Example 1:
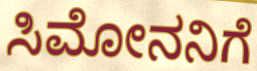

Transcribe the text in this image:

ಸಿಮೋನನಿಗೆ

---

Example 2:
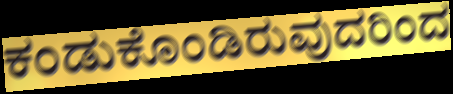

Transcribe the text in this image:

ಕಂಡುಕೊಂಡಿರುವುದರಿಂದ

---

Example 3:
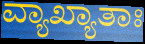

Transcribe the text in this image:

ವ್ಯಾಖ್ಯಾತಾಃ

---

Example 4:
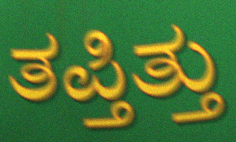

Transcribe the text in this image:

ತಪ್ತಿತ್ತು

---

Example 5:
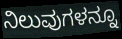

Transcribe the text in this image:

ನಿಲುವುಗಳನ್ನೂ